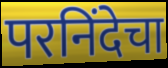
परनिंदेचा